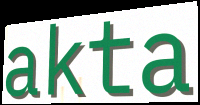
akta